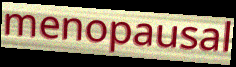
menopausal